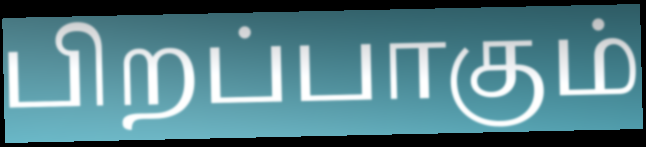
பிறப்பாகும்